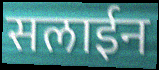
सलाईन